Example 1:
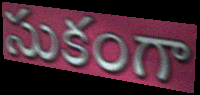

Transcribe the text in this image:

సుకంగా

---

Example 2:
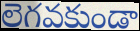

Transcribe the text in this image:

లెగవకుండా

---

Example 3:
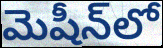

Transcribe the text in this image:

మెషీన్‌లో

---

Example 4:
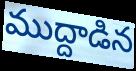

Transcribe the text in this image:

ముద్దాడిన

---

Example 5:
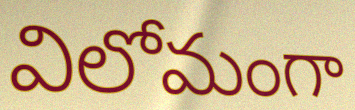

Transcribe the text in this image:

విలోమంగా